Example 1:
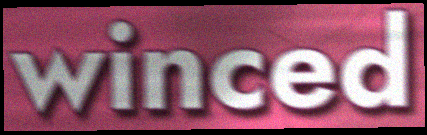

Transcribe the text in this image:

winced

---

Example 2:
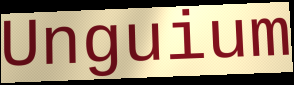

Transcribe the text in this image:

Unguium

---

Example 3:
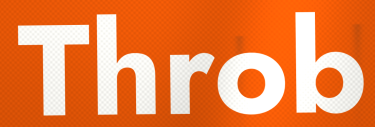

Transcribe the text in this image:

Throb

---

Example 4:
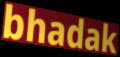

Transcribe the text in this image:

bhadak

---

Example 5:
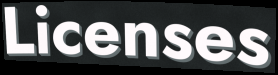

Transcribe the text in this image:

Licenses